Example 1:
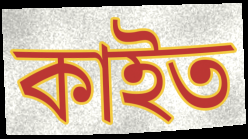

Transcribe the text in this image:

কাইত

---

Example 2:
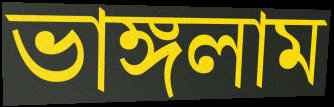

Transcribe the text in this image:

ভাঙ্গলাম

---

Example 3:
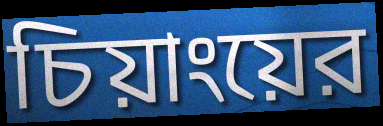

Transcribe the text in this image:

চিয়াংয়ের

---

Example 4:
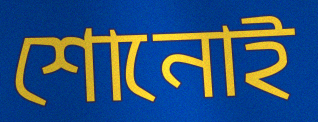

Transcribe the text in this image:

শোনোই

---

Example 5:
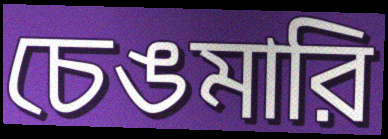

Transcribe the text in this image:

চেঙমারি